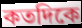
কতদিকে